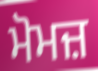
ਮੋਮਜ਼